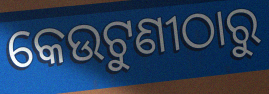
କେଉଟୁଣୀଠାରୁ